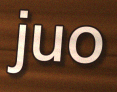
juo